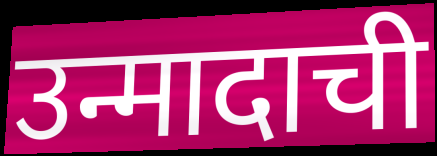
उन्मादाची